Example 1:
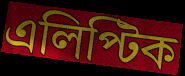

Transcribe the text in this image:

এলিপ্টিক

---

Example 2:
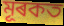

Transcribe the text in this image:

মূৰকত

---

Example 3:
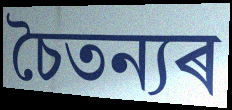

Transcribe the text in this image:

চৈতন্যৰ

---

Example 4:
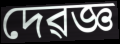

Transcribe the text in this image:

দেৱজ্ঞ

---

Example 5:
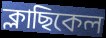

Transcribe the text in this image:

ক্লাছিকেল